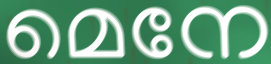
മെനേ